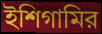
ইশিগামির